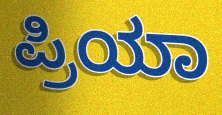
ಪ್ರಿಯಾ